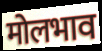
मोलभाव